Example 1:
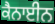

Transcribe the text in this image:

ਕੈਨਾਈਨ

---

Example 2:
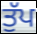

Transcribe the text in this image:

ਤੁੱਪ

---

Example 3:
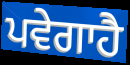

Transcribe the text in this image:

ਪਵੇਗਾਹੈ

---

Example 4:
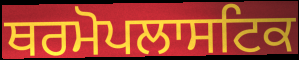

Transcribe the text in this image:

ਥਰਮੋਪਲਾਸਟਿਕ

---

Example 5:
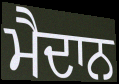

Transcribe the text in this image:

ਮੈਦਾਨ